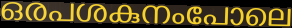
ഒരപശകുനംപോലെ